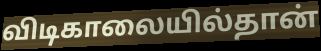
விடிகாலையில்தான்